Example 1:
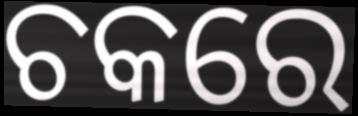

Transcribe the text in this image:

ଚକରେ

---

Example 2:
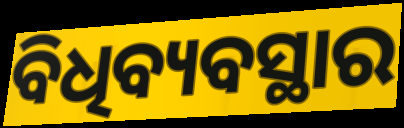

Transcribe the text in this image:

ବିଧିବ୍ୟବସ୍ଥାର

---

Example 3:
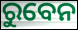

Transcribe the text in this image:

ରୁବେନ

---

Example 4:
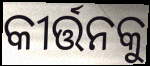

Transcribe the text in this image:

କୀର୍ତ୍ତନକୁ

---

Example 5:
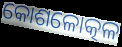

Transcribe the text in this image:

କୋଶଳୋତ୍କଳ